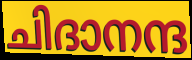
ചിദാനന്ദ